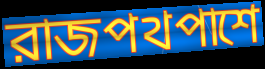
রাজপথপাশে